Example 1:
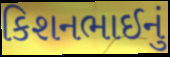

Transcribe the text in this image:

કિશનભાઈનું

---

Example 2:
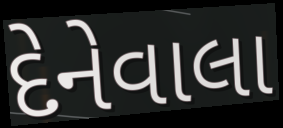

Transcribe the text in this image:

દેનેવાલા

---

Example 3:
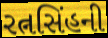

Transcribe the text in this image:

રત્નસિંહની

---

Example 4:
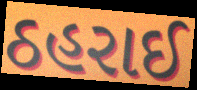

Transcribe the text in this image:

ઠહરાઈ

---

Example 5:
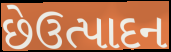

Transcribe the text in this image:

છેઉત્પાદન